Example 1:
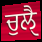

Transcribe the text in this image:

ਚੁਲੈੑ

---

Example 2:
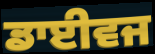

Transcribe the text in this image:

ਡਾਈਵਜ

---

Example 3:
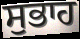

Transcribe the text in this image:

ਸੁਭਾਹ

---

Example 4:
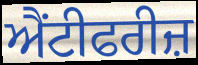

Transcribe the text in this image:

ਐਂਟੀਫਰੀਜ਼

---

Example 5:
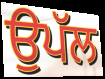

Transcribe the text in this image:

ਉਪੱਲ